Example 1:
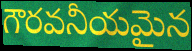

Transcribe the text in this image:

గౌరవనీయమైన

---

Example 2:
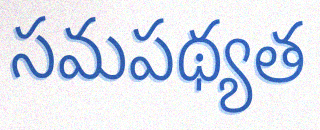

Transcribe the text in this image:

సమపథ్యత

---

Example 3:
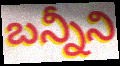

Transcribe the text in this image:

బన్నీని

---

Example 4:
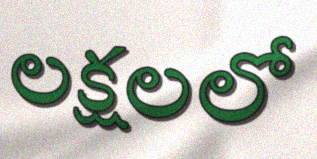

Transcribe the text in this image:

లక్షలలో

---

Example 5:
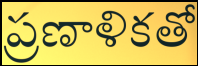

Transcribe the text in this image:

ప్రణాళికతో